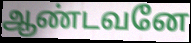
ஆண்டவனே